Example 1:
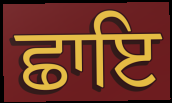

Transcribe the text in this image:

ਛਾਇ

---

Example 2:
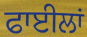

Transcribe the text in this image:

ਫਾਈਲਾਂ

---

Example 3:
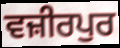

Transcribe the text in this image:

ਵਜ਼ੀਰਪੁਰ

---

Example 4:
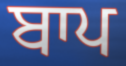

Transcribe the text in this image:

ਬਾਪ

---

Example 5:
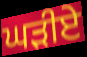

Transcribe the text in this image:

ਘੜੀਏ